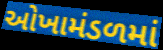
ઓખામંડળમાં